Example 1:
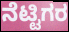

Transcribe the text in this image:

ನೆಟ್ಟಿಗರ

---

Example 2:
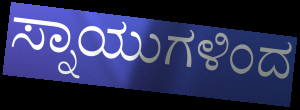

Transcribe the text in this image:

ಸ್ನಾಯುಗಳಿಂದ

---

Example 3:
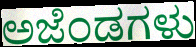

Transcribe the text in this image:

ಅಜೆಂಡಗಳು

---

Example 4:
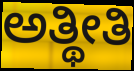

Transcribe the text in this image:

ಅತ್ಥೀತಿ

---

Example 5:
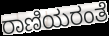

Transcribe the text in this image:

ರಾಣಿಯರಂತೆ